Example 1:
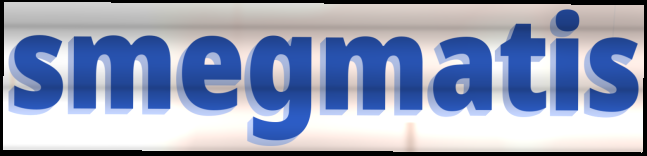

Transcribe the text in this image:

smegmatis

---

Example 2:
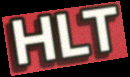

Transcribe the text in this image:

HLT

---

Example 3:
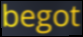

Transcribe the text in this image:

begot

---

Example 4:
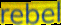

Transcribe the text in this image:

rebel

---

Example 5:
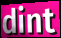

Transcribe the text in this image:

dint